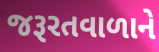
જરૂરતવાળાને